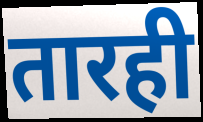
तारही